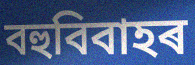
বহুবিবাহৰ